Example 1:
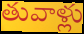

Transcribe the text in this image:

తువాళ్లు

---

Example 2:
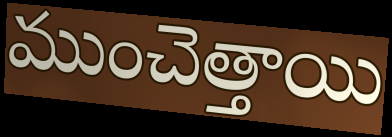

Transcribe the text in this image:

ముంచెత్తాయి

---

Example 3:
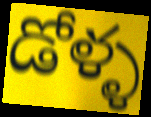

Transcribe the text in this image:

డోళ్ళ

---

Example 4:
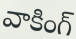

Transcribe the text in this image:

వాకింగ్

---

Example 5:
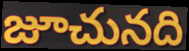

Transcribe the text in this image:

జూచునది